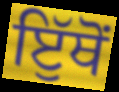
ਇੁੱਥੋਂ